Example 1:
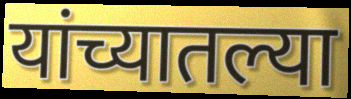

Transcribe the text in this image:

यांच्यातल्या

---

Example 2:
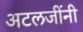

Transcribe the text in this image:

अटलजींनी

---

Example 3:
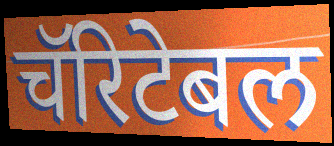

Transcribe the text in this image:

चॅरिटेबल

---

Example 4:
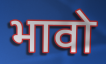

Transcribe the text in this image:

भावो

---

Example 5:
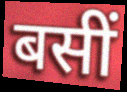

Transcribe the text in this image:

बसीं